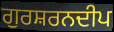
ਗੁਰਸ਼ਰਨਦੀਪ